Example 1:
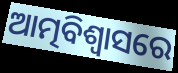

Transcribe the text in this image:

ଆତ୍ମବିଶ୍ଵାସରେ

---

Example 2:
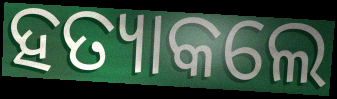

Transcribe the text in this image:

ହତ୍ୟାକଲେ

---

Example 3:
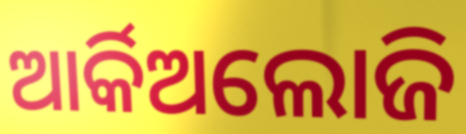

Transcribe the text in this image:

ଆର୍କିଅଲୋଜି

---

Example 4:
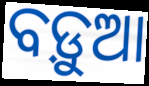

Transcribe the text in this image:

ବଡ଼ୁଆ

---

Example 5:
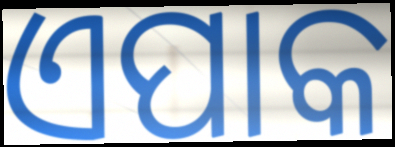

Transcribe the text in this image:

ଏପାକ